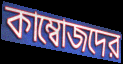
কাম্বোজদের